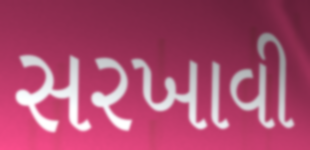
સરખાવી